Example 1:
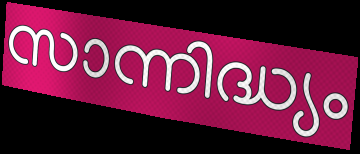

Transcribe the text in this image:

സാന്നിദ്ധ്യം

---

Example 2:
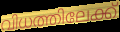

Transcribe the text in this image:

വിധത്തിലേക്ക്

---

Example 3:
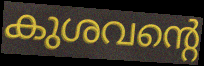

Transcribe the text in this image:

കുശവന്റെ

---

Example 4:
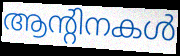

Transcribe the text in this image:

ആന്റിനകൾ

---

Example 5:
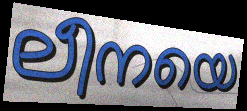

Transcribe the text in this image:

ലീനയെ